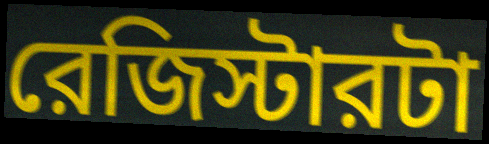
রেজিস্টারটা